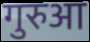
गुरुआ